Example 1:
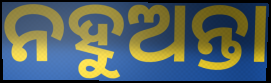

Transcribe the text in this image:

ନହୁଅନ୍ତା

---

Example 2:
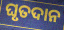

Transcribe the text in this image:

ଘୃତଦାନ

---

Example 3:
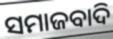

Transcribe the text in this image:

ସମାଜବାଦି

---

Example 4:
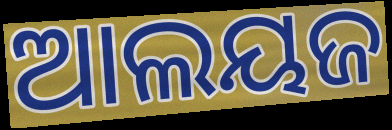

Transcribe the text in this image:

ଆଲୟଜ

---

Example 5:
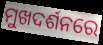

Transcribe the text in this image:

ମୁଖଦର୍ଶନରେ